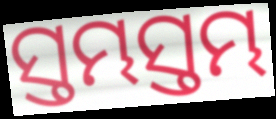
ସ୍ତମ୍ଭସ୍ତମ୍ଭ